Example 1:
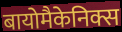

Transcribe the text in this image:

बायोमैकेनिक्स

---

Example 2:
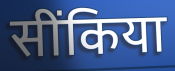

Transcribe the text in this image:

सींकिया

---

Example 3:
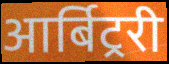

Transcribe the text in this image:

आर्बिट्ररी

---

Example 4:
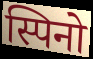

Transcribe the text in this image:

स्पिनो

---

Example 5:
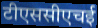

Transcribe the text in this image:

टीएससीएचई